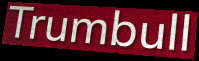
Trumbull